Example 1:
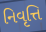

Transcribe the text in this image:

નિવૃત્તિ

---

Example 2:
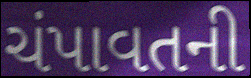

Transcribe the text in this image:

ચંપાવતની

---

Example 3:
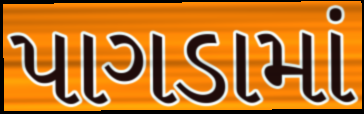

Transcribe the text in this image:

પાગડામાં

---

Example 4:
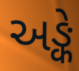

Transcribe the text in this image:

અઙ્કે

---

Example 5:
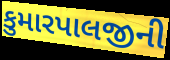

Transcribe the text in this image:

કુમારપાલજીની